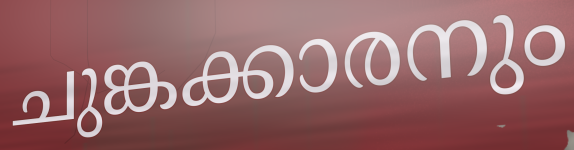
ചുങ്കക്കാരനും